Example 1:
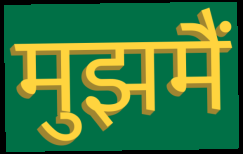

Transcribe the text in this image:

मुझमैं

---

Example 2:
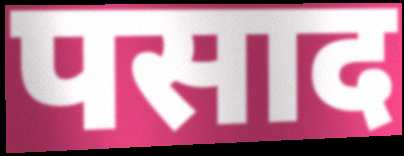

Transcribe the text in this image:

पसाद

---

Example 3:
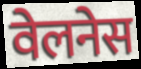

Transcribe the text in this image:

वेलनेस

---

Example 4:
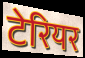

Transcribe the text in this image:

टेरियर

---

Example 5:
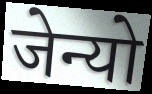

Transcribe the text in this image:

जेन्यो